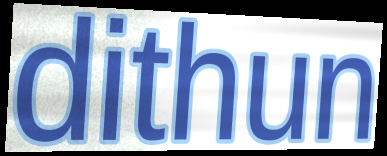
dithun